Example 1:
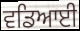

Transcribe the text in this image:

ਵਡਿਆਈ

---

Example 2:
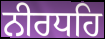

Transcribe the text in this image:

ਨੀਰਧਹਿ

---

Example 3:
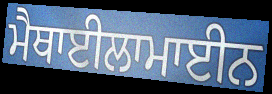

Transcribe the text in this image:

ਮੈਥਾਈਲਾਮਾਈਨ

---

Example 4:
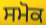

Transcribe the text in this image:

ਸਮੋਕ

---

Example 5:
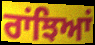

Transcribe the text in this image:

ਰਾਂਝਿਆਂ